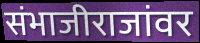
संभाजीराजांवर